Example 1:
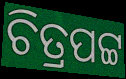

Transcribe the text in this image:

ଚିତ୍ରପଟ୍ଟ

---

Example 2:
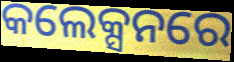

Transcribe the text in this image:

କଲେକ୍ସନରେ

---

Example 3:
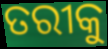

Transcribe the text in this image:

ତରୀକୁ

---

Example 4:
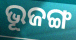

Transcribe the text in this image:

ଭୂଜଙ୍ଗ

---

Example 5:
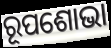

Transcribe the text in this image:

ରୂପଶୋଭା